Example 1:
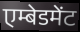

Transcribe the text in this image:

एम्बेडमेंट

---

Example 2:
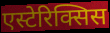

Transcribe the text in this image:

एस्टेरिक्सिस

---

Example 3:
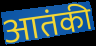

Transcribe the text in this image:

आतंकी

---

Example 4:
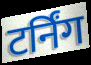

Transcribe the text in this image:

टर्निंग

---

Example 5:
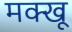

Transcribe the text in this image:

मक्खू